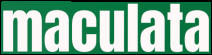
maculata